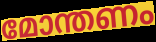
മോന്തണം